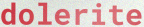
dolerite